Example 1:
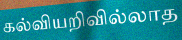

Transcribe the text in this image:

கல்வியறிவில்லாத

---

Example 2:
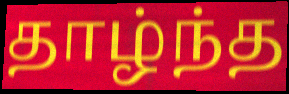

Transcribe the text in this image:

தாழ்ந்த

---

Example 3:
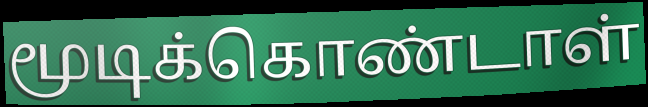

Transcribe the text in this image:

மூடிக்கொண்டாள்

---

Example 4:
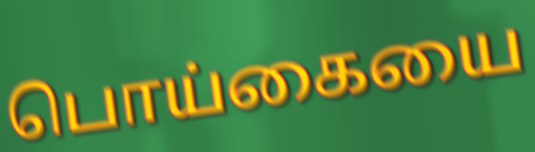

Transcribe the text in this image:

பொய்கையை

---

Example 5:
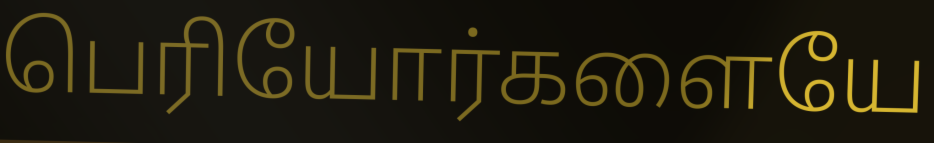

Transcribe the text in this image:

பெரியோர்களையே